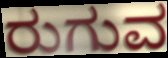
ರುಗುವ